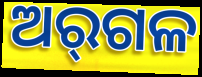
ଅର୍‌ଗଳ